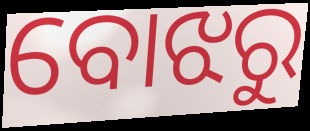
ବୋଝରୁ